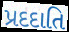
પ્રદદાતિ